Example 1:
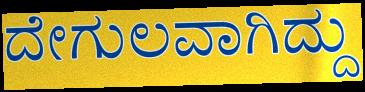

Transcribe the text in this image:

ದೇಗುಲವಾಗಿದ್ದು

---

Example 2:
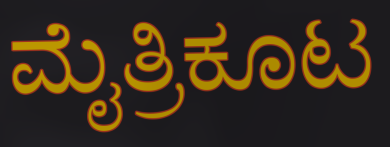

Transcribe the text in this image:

ಮೈತ್ರಿಕೂಟ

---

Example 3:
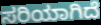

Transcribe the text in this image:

ಸರಿಯಾಗಿದೆ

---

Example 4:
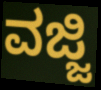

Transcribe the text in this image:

ವಜ್ಜಿ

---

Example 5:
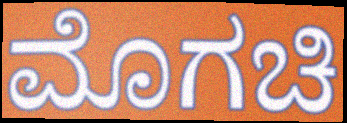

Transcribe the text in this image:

ಮೊಗಚಿ